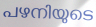
പഴനിയുടെ